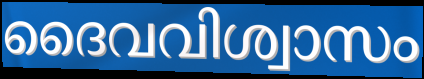
ദൈവവിശ്വാസം